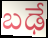
బఢే